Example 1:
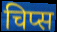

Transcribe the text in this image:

चिप्स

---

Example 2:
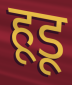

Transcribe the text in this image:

हूडू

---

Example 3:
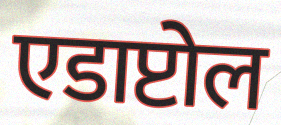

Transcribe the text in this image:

एडाप्टोल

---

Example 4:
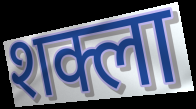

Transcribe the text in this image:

शक्ला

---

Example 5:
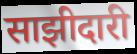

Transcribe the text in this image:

साझीदारी